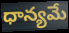
ధాన్యమే